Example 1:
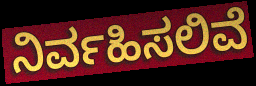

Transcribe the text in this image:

ನಿರ್ವಹಿಸಲಿವೆ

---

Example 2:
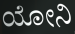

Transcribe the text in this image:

ಯೋನಿ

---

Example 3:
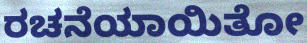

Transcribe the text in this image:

ರಚನೆಯಾಯಿತೋ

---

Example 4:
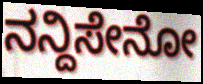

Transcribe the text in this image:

ನನ್ದಿಸೇನೋ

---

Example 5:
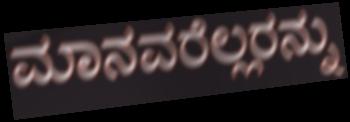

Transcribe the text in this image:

ಮಾನವರೆಲ್ಲರನ್ನು